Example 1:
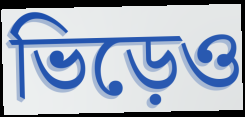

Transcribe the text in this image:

ভিড়েও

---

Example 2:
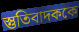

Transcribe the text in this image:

স্তুতিবাদককে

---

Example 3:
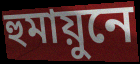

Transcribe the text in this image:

হুমায়ুনে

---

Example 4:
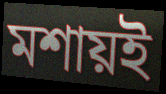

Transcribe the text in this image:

মশায়ই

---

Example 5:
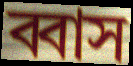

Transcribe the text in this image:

ব্বাস